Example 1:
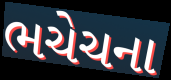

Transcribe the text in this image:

ભચેચના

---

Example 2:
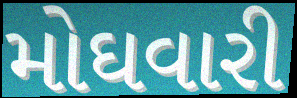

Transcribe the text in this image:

મોઘવારી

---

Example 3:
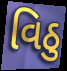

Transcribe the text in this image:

વિઠુ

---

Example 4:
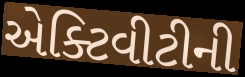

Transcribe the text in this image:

એક્ટિવીટીની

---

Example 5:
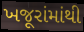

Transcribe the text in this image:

ખજૂરાંમાંથી